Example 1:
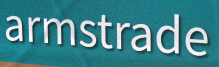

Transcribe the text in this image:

armstrade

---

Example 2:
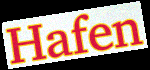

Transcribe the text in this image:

Hafen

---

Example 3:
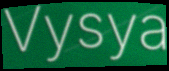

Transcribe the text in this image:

Vysya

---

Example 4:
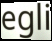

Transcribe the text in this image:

egli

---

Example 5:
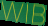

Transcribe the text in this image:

WIB